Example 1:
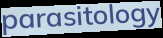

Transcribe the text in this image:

parasitology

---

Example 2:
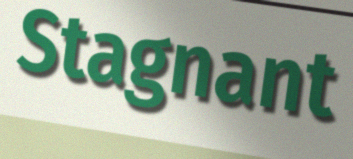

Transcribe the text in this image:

Stagnant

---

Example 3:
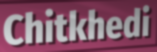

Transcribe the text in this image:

Chitkhedi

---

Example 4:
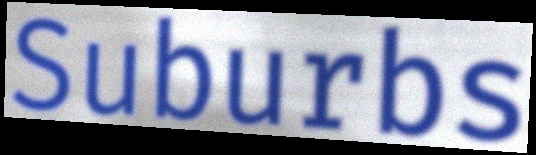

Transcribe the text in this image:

Suburbs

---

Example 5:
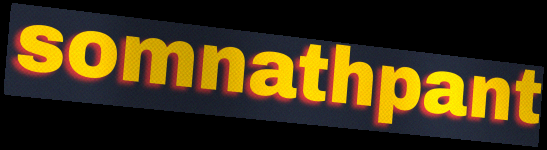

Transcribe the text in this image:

somnathpant